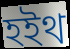
হইথ